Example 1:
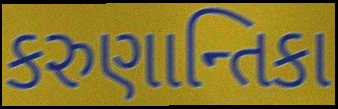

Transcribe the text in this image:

કરુણાન્તિકા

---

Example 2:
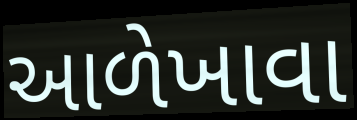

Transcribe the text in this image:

આળેખાવા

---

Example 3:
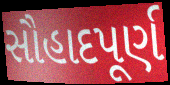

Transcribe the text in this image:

સૌહાદપૂર્ણ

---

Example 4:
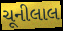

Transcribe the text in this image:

ચૂનીલાલ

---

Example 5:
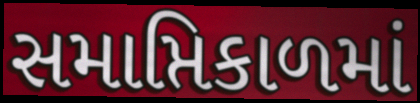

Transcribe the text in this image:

સમાપ્તિકાળમાં